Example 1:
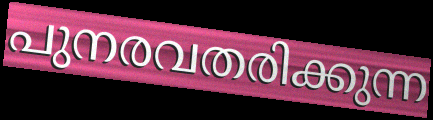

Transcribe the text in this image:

പുനരവതരിക്കുന്ന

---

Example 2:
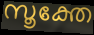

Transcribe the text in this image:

സൂക്തേ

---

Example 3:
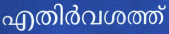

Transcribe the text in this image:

എതിർവശത്ത്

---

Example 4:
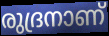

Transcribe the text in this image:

രുദ്രനാണ്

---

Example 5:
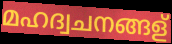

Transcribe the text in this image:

മഹദ്വചനങ്ങള്